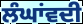
ਲੰਘਾਂਵਦੀ